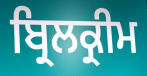
ਬ੍ਰਿਲਕ੍ਰੀਮ